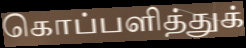
கொப்பளித்துக்